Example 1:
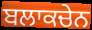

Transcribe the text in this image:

ਬਲਾਕਚੇਨ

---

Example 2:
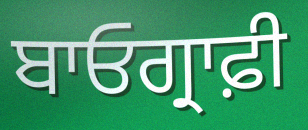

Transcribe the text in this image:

ਬਾਓਗ੍ਰਾਫ਼ੀ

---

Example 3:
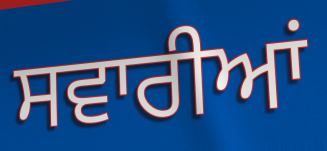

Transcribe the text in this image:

ਸਵਾਰੀਆਂ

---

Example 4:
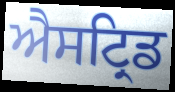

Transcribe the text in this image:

ਐਸਟ੍ਰਿਡ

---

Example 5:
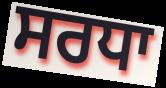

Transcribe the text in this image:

ਸਰਧਾ